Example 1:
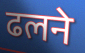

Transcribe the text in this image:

ढलने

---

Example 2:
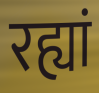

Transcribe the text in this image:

रह्यां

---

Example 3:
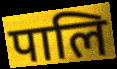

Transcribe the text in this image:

पालि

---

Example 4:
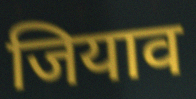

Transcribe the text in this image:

जियाव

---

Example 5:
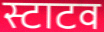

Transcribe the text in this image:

स्टाटव